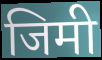
जिमी